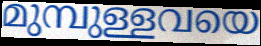
മുമ്പുള്ളവയെ